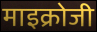
माइक्रोजी